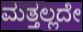
ಮತ್ತಲ್ಲದೇ